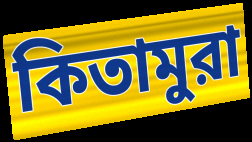
কিতামুরা